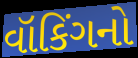
વૉકિંગનો